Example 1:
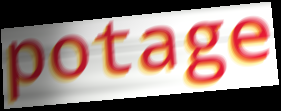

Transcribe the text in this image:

potage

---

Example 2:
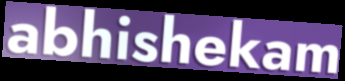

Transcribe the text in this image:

abhishekam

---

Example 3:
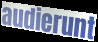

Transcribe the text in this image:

audierunt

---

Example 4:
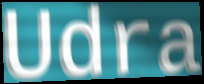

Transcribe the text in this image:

Udra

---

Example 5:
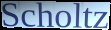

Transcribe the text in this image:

Scholtz